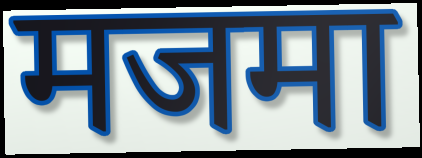
मजमा